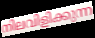
നിലവിളിക്കുന്ന